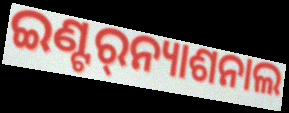
ଇଣ୍ଟର୍‌ନ୍ୟାଶନାଲ